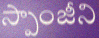
స్పాంజీని